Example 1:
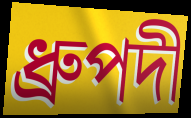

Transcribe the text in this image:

ধ্ৰুপদী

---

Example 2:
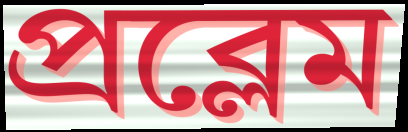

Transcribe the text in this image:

প্ৰব্লেম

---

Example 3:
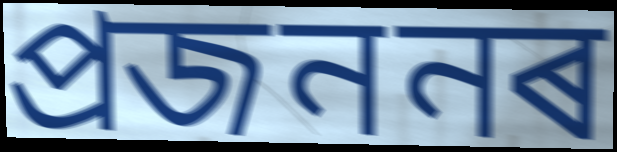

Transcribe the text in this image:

প্ৰজননৰ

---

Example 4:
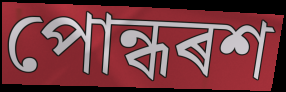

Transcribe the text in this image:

পোন্ধৰশ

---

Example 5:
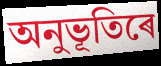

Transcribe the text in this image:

অনুভূতিৰে